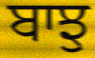
ਬਾਝੁ